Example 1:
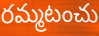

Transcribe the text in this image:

రమ్మటంచు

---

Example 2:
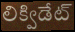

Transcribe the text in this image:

లిక్విడేట్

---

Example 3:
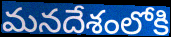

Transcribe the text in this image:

మనదేశంలోకి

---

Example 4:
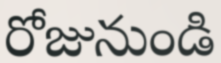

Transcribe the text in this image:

రోజునుండి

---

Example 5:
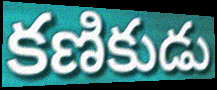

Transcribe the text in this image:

కణికుడు